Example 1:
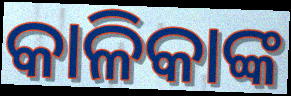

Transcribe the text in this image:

କାଳିକାଙ୍କ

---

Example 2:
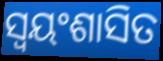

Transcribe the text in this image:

ସ୍ୱୟଂଶାସିତ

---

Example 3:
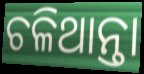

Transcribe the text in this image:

ଚଳିଥାନ୍ତା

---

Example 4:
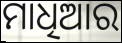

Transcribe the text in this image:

ମାଧିଆର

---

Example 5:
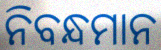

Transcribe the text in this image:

ନିବନ୍ଧମାନ